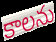
కాలను